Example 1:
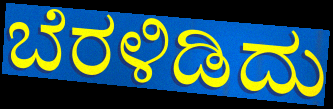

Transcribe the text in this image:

ಬೆರಳಿಡಿದು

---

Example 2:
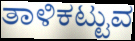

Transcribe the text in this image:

ತಾಳಿಕಟ್ಟುವ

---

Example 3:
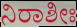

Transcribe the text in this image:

ನಿರಾಶೀಃ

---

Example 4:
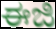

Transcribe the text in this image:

ಈಜಿ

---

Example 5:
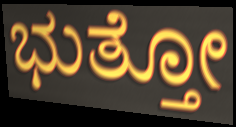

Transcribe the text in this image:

ಭುತ್ತೋ